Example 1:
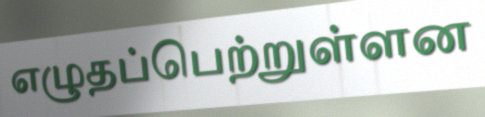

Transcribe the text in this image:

எழுதப்பெற்றுள்ளன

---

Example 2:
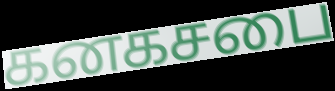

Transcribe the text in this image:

கனகசபை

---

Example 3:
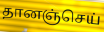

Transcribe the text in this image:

தானஞ்செய்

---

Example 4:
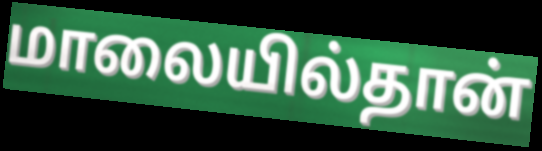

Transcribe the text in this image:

மாலையில்தான்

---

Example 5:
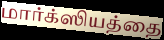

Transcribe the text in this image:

மார்க்ஸியத்தை